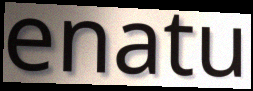
enatu